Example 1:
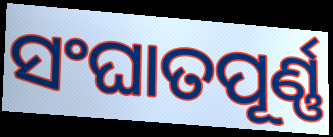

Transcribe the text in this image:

ସଂଘାତପୂର୍ଣ୍ଣ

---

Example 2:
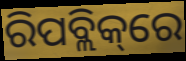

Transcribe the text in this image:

ରିପବ୍ଲିକ୍‌ରେ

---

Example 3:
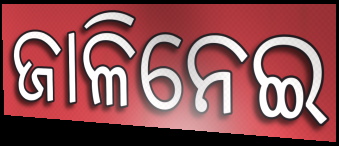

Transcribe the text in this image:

ଜାଳିନେଇ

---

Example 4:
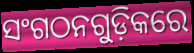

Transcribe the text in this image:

ସଂଗଠନଗୁଡ଼ିକରେ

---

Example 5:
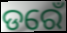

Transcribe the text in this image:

ଡରେଁ